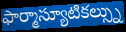
ఫార్మాస్యూటికల్స్ను